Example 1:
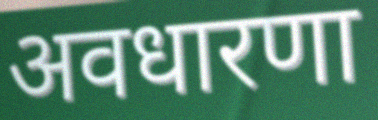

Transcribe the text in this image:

अवधारणा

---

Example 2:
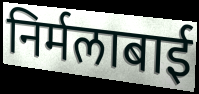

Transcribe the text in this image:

निर्मलाबाई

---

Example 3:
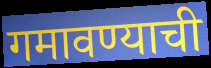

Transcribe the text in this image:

गमावण्याची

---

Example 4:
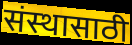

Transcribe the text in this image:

संस्थासाठी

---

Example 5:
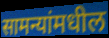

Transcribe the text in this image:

सामन्यांमधील